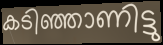
കടിഞ്ഞാണിട്ടു